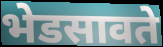
भेडसावते